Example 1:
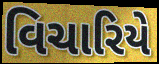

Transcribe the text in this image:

વિચારિયે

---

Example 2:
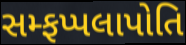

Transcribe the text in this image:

સમ્ફપ્પલાપોતિ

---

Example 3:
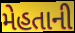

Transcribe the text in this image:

મેહતાની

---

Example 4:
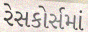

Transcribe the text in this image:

રેસકોર્સમાં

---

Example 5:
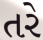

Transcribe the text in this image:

તરે